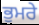
ਭੁਮਰੇ